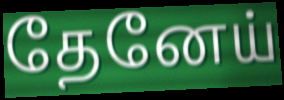
தேனேய்